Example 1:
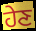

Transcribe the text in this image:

ਹੇਣ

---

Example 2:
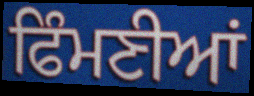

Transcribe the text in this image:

ਫਿੰਮਣੀਆਂ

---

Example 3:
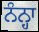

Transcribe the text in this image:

ਨੰਨ੍ਹਾ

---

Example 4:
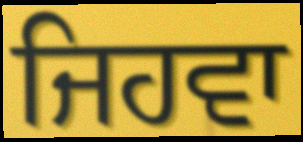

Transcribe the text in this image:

ਜਿਹਵਾ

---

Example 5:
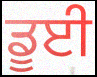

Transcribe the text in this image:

ਡੂਈ